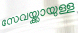
സേവയ്ക്കായുള്ള